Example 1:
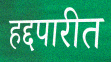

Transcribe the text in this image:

हद्दपारीत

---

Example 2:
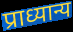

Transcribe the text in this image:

प्राध्यान्य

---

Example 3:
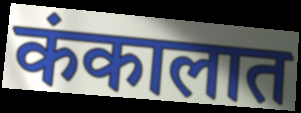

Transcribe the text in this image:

कंकालात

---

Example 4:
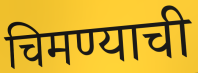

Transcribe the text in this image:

चिमण्याची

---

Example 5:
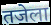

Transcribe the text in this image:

तजेला